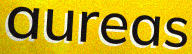
aureas